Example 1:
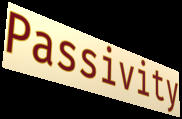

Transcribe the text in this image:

Passivity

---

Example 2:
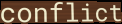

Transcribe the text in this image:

conflict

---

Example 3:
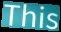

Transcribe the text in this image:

This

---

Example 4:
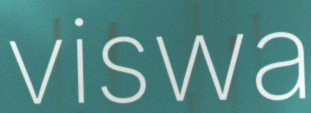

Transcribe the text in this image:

viswa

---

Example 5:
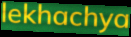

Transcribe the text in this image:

lekhachya